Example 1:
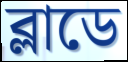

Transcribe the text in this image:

ব্লাডে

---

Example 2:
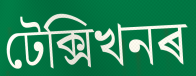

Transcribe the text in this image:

টেক্সিখনৰ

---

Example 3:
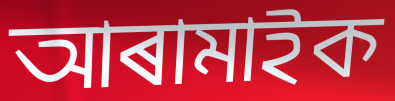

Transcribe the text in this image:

আৰামাইক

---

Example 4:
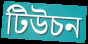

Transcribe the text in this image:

টিউচন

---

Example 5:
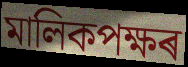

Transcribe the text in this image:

মালিকপক্ষৰ